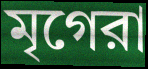
মৃগেরা